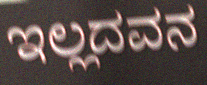
ಇಲ್ಲದವನ